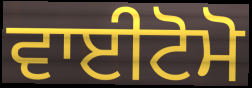
ਵਾਈਟੋਮੋ